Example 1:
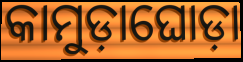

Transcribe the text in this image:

କାମୁଡ଼ାଘୋଡ଼ା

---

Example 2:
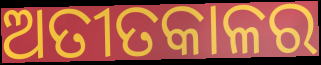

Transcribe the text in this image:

ଅତୀତକାଳର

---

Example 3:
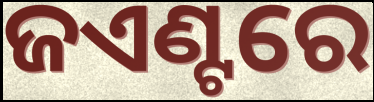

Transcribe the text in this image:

ଜଏଣ୍ଟରେ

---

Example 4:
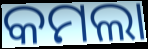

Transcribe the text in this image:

କମଲା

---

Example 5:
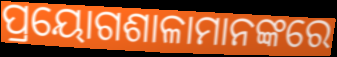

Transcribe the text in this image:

ପ୍ରୟୋଗଶାଳାମାନଙ୍କରେ